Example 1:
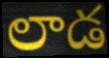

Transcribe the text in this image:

లాడ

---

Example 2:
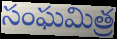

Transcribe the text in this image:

సంఘమిత్ర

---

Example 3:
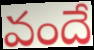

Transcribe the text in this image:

వందే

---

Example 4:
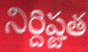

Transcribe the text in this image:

నిర్దిష్టత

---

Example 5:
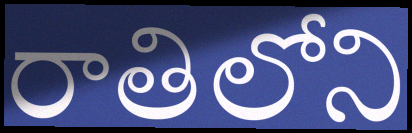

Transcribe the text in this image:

రాతిలోని